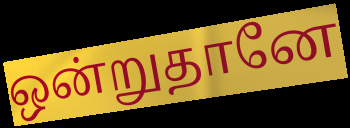
ஒன்றுதானே